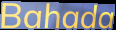
Bahada